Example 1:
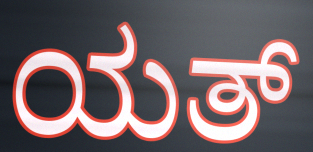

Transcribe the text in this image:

ಯತ್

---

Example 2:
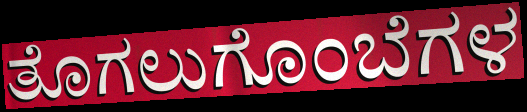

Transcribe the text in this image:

ತೊಗಲುಗೊಂಬೆಗಳ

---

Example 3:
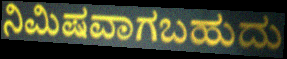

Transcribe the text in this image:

ನಿಮಿಷವಾಗಬಹುದು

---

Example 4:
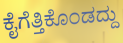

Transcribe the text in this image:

ಕೈಗೆತ್ತಿಕೊಂಡದ್ದು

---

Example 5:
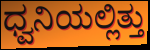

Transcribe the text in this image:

ಧ್ವನಿಯಲ್ಲಿತ್ತು